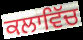
ਕਲਾਵਿੱਚ